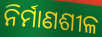
ନିର୍ମାଣଶୀଳ